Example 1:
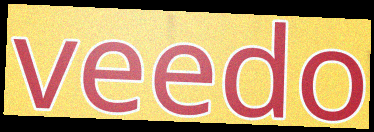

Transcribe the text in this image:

veedo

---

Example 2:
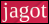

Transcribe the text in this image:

jagot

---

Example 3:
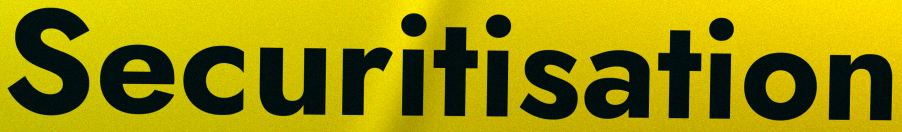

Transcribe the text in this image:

Securitisation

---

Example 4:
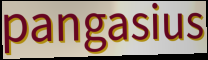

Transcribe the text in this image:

pangasius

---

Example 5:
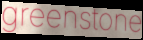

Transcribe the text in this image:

greenstone